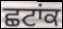
ਛਟਾਂਕ